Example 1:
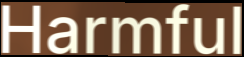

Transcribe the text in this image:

Harmful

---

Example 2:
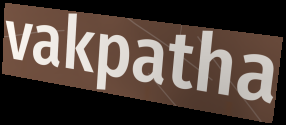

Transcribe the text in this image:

vakpatha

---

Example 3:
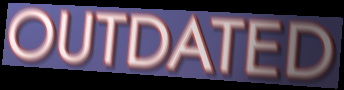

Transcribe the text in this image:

OUTDATED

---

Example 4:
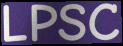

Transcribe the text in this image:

LPSC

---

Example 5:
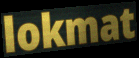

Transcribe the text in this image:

lokmat